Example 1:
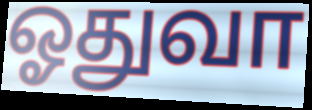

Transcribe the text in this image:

ஓதுவா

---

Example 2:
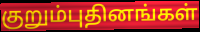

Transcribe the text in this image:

குறும்புதினங்கள்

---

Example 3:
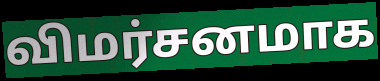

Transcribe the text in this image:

விமர்சனமாக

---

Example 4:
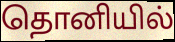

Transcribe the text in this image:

தொனியில்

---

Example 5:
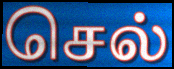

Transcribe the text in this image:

செல்